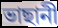
ভাছানী